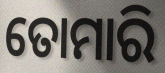
ତୋମାରି